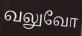
வலுவோ